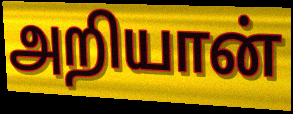
அறியான்